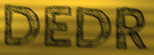
DEDR